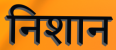
निशान